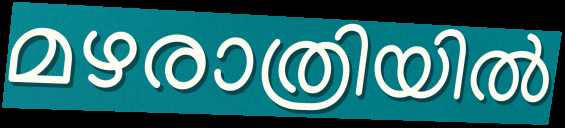
മഴരാത്രിയിൽ